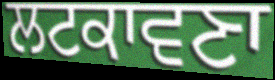
ਲਟਕਾਵਣਾ